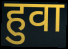
हुवा